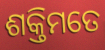
ଶକ୍ତିମତେ